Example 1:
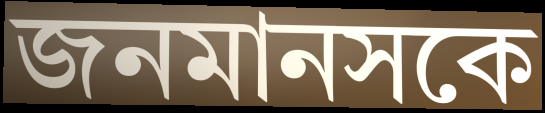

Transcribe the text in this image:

জনমানসকে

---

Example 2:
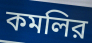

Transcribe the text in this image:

কমলির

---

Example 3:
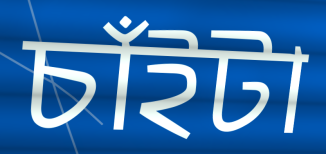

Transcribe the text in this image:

চাঁইটা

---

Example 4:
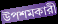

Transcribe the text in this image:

উপশমকারী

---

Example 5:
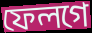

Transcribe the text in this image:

ফেলগে